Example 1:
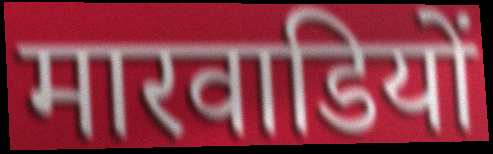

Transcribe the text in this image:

मारवाडियों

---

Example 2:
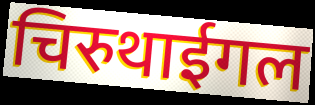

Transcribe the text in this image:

चिरुथाईगल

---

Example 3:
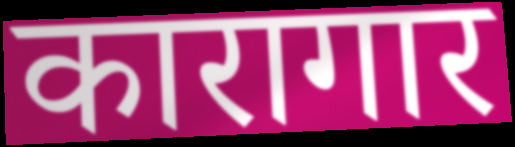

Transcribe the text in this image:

कारागार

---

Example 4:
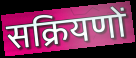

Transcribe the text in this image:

सक्रियणों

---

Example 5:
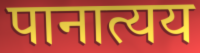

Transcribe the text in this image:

पानात्यय